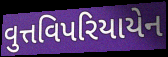
વુત્તવિપરિયાયેન